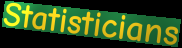
Statisticians